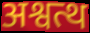
अश्वत्थ